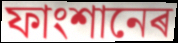
ফাংশানেৰ